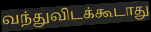
வந்துவிடக்கூடாது